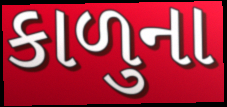
કાળુના